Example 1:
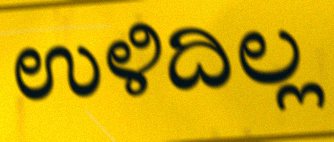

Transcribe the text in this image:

ಉಳಿದಿಲ್ಲ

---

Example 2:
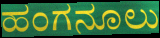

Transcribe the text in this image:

ಹಂಗನೂಲು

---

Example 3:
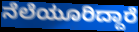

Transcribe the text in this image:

ನೆಲೆಯೂರಿದ್ದಾರೆ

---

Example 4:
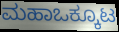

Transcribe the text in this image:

ಮಹಾಒಕ್ಕೂಟ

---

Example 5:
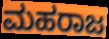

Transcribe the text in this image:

ಮಹರಾಜ